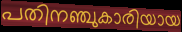
പതിനഞ്ചുകാരിയായ